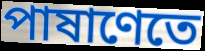
পাষাণেতে